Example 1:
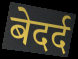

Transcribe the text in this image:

बेदर्द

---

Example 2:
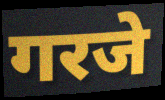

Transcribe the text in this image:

गरजे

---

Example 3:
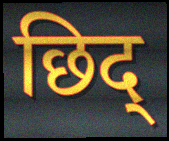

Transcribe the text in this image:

छिद्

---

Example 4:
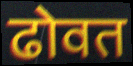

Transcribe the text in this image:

ढोवत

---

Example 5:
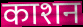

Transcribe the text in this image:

काशन